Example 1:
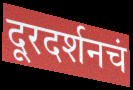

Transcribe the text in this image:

दूरदर्शनचं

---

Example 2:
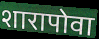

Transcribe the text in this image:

शारापोवा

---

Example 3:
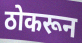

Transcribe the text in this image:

ठोकरून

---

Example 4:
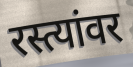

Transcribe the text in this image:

रस्त्यांवर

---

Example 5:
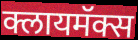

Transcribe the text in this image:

क्लायमॅक्स